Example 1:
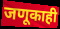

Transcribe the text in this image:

जणूकाही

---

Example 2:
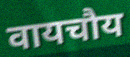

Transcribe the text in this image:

वायचौय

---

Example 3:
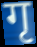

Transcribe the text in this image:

गृ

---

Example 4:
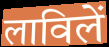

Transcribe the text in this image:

लाविलें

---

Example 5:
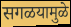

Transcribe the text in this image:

सगळयामुळे